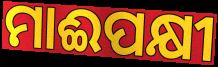
ମାଈପକ୍ଷୀ